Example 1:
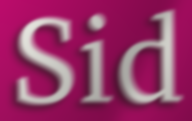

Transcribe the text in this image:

Sid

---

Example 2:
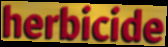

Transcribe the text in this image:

herbicide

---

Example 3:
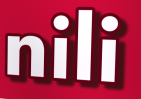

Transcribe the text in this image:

nili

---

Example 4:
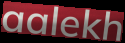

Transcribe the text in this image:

aalekh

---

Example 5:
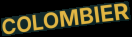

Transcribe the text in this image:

COLOMBIER